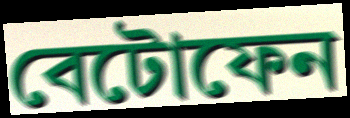
বেটোফেন